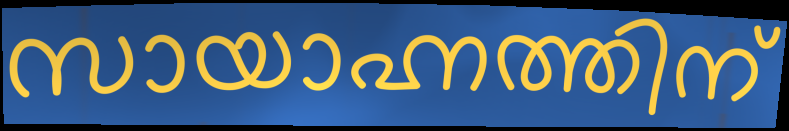
സായാഹ്നത്തിന്